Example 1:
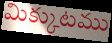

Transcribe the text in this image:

మిక్కుటము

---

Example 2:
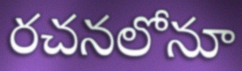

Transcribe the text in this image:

రచనలోనూ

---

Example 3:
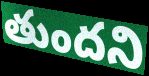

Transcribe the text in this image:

తుందని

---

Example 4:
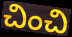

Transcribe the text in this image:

చించి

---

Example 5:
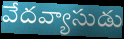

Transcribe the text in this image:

వేదవ్యాసుడు